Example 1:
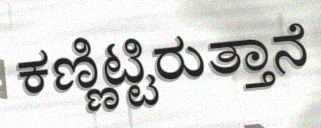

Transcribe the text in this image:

ಕಣ್ಣಿಟ್ಟಿರುತ್ತಾನೆ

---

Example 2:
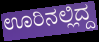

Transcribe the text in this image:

ಊರಿನಲ್ಲಿದ್ದ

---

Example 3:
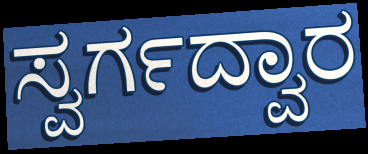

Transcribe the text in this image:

ಸ್ವರ್ಗದ್ವಾರ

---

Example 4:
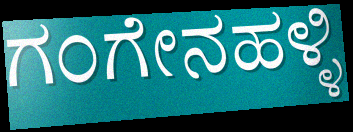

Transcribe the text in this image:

ಗಂಗೇನಹಳ್ಳಿ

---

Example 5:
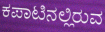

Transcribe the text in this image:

ಕಪಾಟಿನಲ್ಲಿರುವ